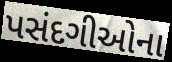
પસંદગીઓના